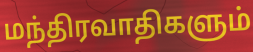
மந்திரவாதிகளும்